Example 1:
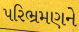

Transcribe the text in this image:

પરિભ્રમણને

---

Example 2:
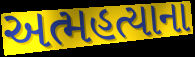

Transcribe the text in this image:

અત્મહત્યાના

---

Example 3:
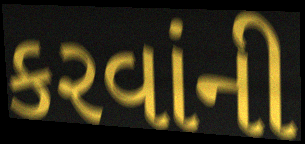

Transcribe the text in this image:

કરવાંની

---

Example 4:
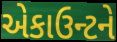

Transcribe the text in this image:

એકાઉન્ટને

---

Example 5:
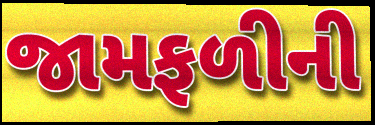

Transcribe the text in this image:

જામફળીની